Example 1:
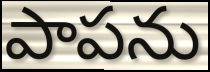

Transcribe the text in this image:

పాపను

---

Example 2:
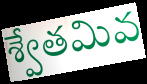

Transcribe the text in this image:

శ్వేతమివ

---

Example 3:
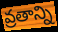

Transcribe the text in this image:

వ్రతాన్ని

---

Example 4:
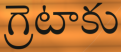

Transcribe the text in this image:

గ్రెటాకు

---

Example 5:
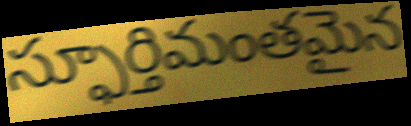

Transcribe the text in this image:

స్ఫూర్తిమంతమైన